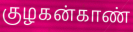
குழகன்காண்